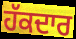
ਹੱਕਦਾਰ